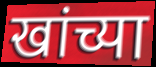
खांच्या